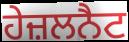
ਹੇਜ਼ਲਨੈਟ